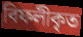
বিফলীকৃত